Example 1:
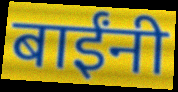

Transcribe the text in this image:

बाईंनी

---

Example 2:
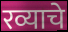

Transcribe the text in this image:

रव्याचे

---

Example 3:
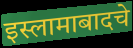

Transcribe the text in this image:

इस्लामाबादचे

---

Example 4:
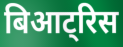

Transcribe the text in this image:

बिआट्रिस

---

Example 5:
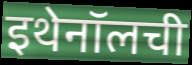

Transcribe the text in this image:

इथेनॉलची